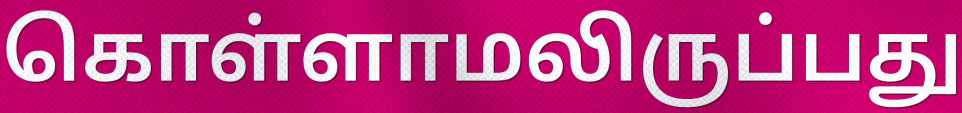
கொள்ளாமலிருப்பது